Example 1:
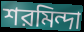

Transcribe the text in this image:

শরমিন্দা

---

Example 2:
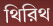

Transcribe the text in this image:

থিরিথ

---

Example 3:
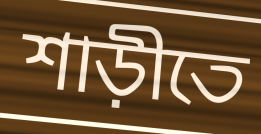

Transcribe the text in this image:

শাড়ীতে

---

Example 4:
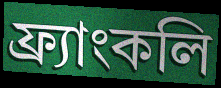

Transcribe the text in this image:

ফ্র্যাংকলি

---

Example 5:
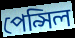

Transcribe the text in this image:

পেন্সিল